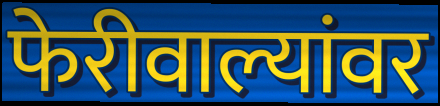
फेरीवाल्यांवर